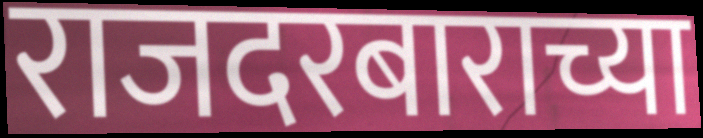
राजदरबाराच्या